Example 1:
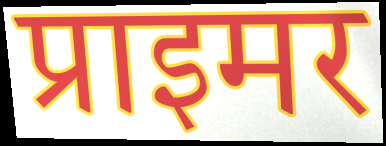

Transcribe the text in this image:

प्राइमर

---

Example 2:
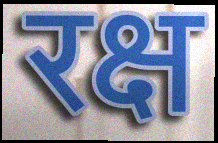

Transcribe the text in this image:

रक्ष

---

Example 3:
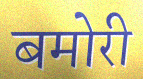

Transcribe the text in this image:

बमोरी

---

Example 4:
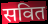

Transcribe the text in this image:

सवित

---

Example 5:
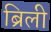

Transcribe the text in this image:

ब्रिली